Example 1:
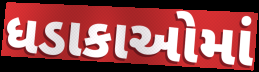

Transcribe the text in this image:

ધડાકાઓમાં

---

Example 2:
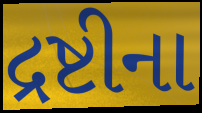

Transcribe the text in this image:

દ્રષ્ટીના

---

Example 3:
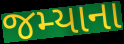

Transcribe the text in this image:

જમ્યાના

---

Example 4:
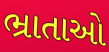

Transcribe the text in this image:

ભ્રાતાઓ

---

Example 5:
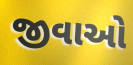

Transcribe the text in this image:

જીવાઓ